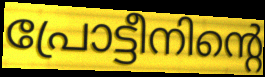
പ്രോട്ടീനിന്റെ